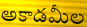
అకాడమీల